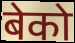
बेको